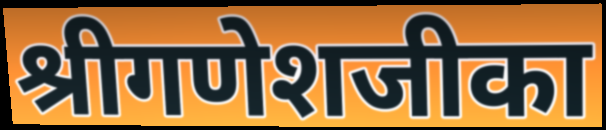
श्रीगणेशजीका